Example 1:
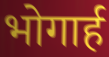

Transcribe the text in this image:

भोगार्ह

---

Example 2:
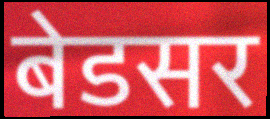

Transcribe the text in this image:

बेडसर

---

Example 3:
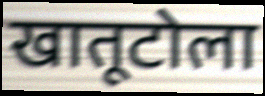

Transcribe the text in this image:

खातूटोला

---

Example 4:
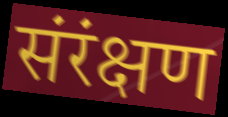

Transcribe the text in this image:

संरंक्षण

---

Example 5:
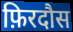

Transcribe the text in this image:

फ़िरदौस